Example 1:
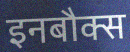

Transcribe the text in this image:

इनबौक्स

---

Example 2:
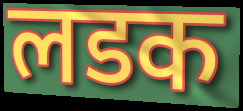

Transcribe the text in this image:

लडक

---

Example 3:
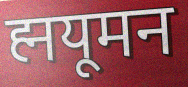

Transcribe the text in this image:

ह्मयूमन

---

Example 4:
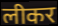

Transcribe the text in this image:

लीकर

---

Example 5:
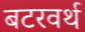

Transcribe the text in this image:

बटरवर्थ